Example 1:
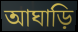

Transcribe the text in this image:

আঘাড়ি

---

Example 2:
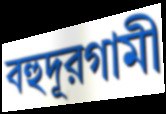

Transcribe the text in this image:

বহুদূরগামী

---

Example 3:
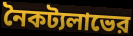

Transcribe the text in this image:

নৈকট্যলাভের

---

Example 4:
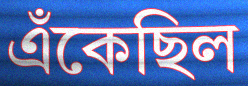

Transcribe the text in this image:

এঁকেছিল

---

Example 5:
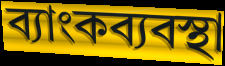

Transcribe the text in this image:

ব্যাংকব্যবস্থা